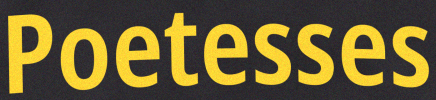
Poetesses